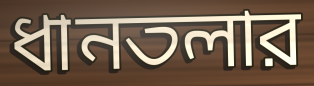
ধানতলার